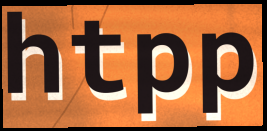
htpp